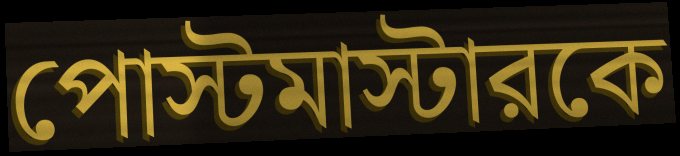
পোস্টমাস্টারকে